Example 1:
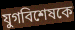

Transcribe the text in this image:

যুগবিশেষকে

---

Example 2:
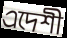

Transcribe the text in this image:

এদেশী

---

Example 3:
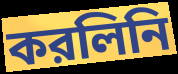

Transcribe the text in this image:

করলিনি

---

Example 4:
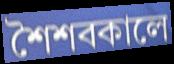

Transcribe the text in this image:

শৈশবকালে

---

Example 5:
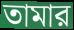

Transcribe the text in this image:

তামার